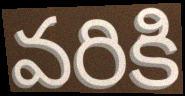
వరికి